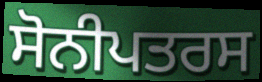
ਸੋਨੀਪਤਰਸ